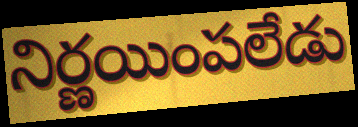
నిర్ణయింపలేడు